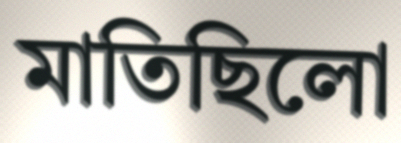
মাতিছিলো